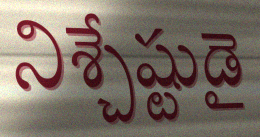
నిశ్చేష్టుడై